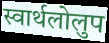
स्वार्थलोलुप